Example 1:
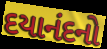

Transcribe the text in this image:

દયાનંદનો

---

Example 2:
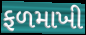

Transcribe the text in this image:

ફળમાખી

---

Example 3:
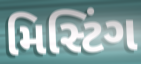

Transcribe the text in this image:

મિસ્ટિંગ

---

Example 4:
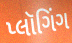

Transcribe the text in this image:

પ્લૉગિંગ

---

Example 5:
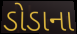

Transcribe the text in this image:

ડોડાના